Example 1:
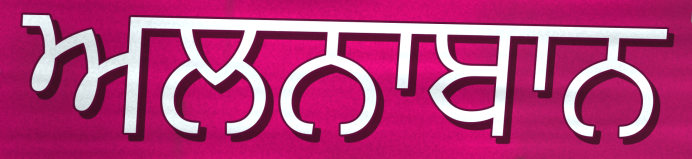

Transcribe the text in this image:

ਅਲਨਾਬਾਨ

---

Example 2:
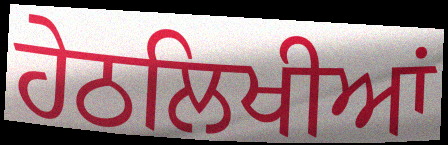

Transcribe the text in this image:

ਹੇਠਲਿਖੀਆਂ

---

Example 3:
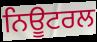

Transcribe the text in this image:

ਨਿਊਟਰਲ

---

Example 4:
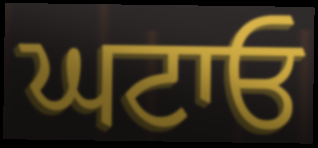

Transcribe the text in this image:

ਘਟਾਓ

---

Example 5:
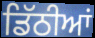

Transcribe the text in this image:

ਡਿੱਠੀਆਂ